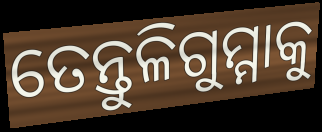
ତେନ୍ତୁଳିଗୁମ୍ମାକୁ